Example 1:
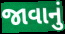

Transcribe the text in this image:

જાવાનું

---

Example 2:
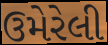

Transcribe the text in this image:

ઉમેરેલી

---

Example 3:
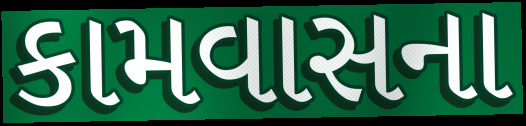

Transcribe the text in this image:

કામવાસના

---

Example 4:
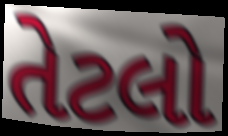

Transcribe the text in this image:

તેટલો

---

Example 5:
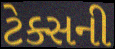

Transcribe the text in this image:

ટેક્સની